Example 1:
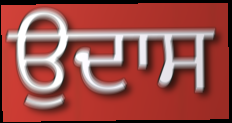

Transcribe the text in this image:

ਉਦਾਸ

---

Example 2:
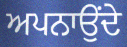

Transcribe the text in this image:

ਅਪਨਾਉਂਦੇ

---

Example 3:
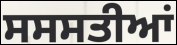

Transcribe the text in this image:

ਸਸਸਤੀਆਂ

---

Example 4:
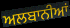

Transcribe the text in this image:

ਅਲਬਾਨੀਆਂ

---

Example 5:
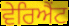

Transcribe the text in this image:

ਵੇਰਿਐਂਟ